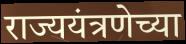
राज्ययंत्रणेच्या